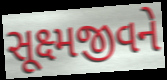
સૂક્ષ્મજીવને